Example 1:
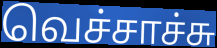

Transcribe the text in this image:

வெச்சாச்சு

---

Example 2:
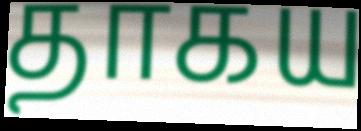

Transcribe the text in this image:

தாகய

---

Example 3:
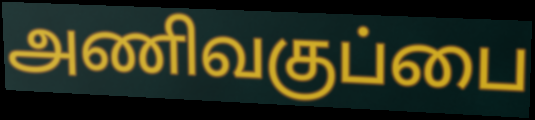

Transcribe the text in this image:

அணிவகுப்பை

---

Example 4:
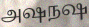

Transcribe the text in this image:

அஷநஷ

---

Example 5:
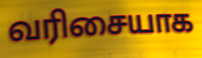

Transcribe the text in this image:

வரிசையாக